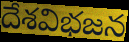
దేశవిభజన